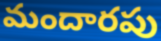
మందారపు